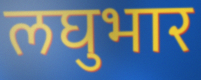
लघुभार